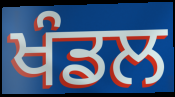
ਖੰਡਲ